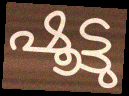
ഷൂട്ടു